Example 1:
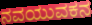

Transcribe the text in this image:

ನವಯುವಕನ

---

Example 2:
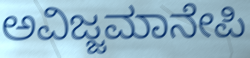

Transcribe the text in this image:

ಅವಿಜ್ಜಮಾನೇಪಿ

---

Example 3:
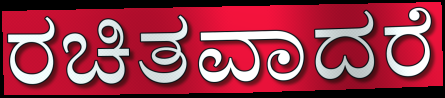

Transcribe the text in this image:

ರಚಿತವಾದರೆ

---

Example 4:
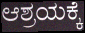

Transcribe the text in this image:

ಆಶ್ರಯಕ್ಕೆ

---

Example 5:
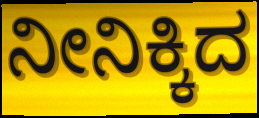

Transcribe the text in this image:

ನೀನಿಕ್ಕಿದ